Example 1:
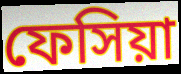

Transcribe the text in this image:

ফেসিয়া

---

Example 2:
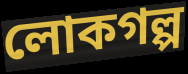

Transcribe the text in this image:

লোকগল্প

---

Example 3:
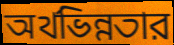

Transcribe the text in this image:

অর্থভিন্নতার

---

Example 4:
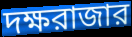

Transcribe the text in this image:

দক্ষরাজার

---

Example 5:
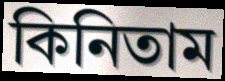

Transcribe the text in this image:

কিনিতাম